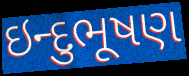
ઇન્દુભૂષણ